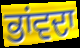
ਭਾਂਵਦਾ